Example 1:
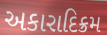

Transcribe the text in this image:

અકારાદિક્રમ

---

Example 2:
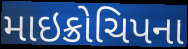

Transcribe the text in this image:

માઇક્રોચિપના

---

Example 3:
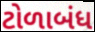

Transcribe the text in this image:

ટોળાબંધ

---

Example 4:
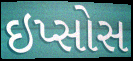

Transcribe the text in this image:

ઇપ્સોસ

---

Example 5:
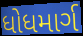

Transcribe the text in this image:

ધોધમાર્ગ